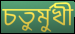
চতুর্মুখী